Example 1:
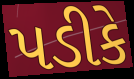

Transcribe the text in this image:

પડીકે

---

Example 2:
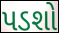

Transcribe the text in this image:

પડશો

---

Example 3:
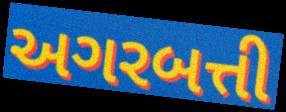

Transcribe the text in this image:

અગરબત્તી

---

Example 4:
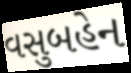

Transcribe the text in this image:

વસુબહેન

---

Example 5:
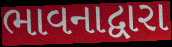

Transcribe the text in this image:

ભાવનાદ્વારા